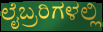
ಲೈಬ್ರರಿಗಳಲ್ಲಿ